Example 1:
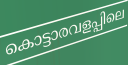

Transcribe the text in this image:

കൊട്ടാരവളപ്പിലെ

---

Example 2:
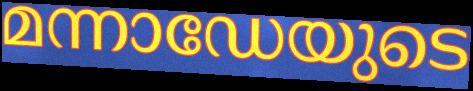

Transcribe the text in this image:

മന്നാഡേയുടെ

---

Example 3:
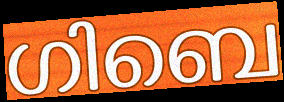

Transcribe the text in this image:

ഗിബെ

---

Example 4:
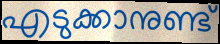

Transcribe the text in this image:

എടുക്കാനുണ്ട്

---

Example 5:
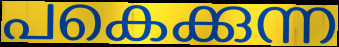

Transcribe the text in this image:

പകെക്കുന്ന